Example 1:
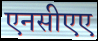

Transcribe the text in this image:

एनसीएए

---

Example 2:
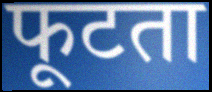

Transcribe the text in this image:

फूटता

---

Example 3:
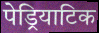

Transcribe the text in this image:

पेड्रियाटिक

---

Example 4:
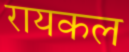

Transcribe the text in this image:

रायकल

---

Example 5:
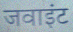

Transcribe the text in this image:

जवाइंट